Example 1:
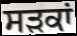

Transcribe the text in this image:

ਸੜਕਾਂ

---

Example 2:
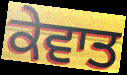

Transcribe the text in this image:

ਕੇਵਾਤ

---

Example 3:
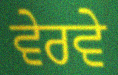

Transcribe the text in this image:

ਵੇਰਵੇ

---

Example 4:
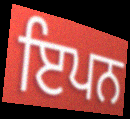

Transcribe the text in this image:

ਇਪਨ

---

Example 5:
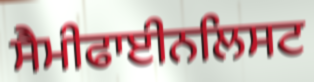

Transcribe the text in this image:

ਸੈਮੀਫਾਈਨਲਿਸਟ